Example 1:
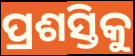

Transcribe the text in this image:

ପ୍ରଶସ୍ତିକୁ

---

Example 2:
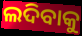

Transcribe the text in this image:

ଲଦିବାକୁ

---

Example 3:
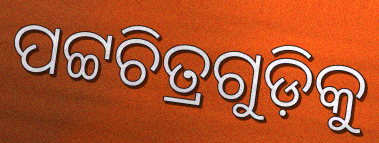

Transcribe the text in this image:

ପଟ୍ଟଚିତ୍ରଗୁଡ଼ିକୁ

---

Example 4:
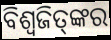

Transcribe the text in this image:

ବିଶ୍ଵଜିତ୍‌ଙ୍କର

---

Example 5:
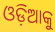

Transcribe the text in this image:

ଓଡ଼ିଆକୁ